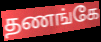
தணங்கே